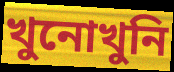
খুনোখুনি